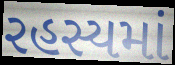
રહસ્યમાં